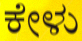
ಕೇಳು